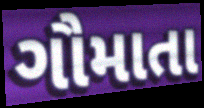
ગૌમાતા